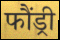
फौंड्री